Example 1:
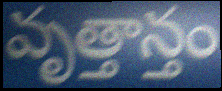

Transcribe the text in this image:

వృత్తాన్తం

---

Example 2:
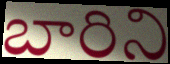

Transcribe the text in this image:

బారిని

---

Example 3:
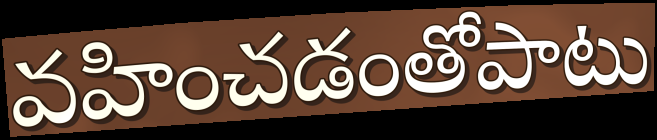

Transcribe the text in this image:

వహించడంతోపాటు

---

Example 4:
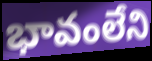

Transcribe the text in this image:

భావంలేని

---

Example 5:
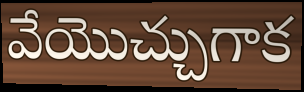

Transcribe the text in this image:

వేయొచ్చుగాక